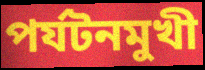
পর্যটনমুখী